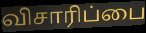
விசாரிப்பை